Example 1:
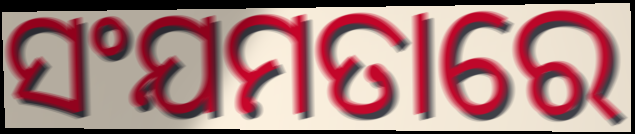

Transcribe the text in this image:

ସଂଯମତାରେ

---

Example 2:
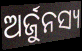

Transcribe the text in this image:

ଅର୍ଜୁନସ୍ୟ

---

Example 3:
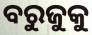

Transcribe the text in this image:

ବରୁଜୁକୁ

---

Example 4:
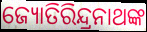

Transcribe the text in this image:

ଜ୍ୟୋତିରିନ୍ଦ୍ରନାଥଙ୍କ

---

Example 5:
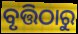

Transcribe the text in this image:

ବୃତ୍ତିଠାରୁ